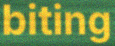
biting